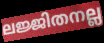
ലജ്ജിതനല്ല